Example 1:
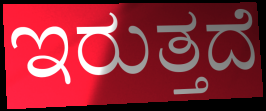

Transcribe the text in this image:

ಇರುತ್ತದೆ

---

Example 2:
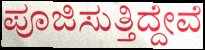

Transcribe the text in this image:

ಪೂಜಿಸುತ್ತಿದ್ದೇವೆ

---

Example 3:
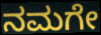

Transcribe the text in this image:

ನಮಗೇ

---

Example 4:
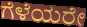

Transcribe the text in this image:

ಗೆಳೆಯರೇ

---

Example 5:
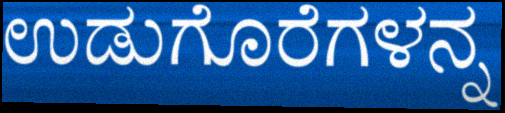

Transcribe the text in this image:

ಉಡುಗೊರೆಗಳನ್ನ